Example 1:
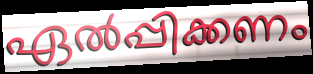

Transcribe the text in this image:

ഏൽപ്പിക്കണം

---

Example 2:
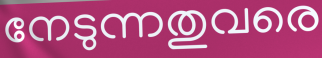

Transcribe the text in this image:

നേടുന്നതുവരെ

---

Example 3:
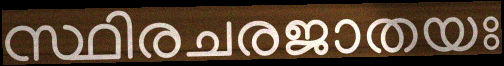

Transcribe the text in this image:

സ്ഥിരചരജാതയഃ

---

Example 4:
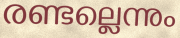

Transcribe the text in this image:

രണ്ടല്ലെന്നും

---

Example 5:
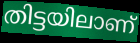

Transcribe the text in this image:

തിട്ടയിലാണ്